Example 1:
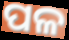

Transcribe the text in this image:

ପଳ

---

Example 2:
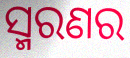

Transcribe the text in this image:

ସ୍ମରଣର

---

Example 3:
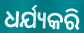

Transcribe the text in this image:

ଧର୍ଯ୍ୟକରି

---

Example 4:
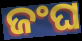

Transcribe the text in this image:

ଜଂଘ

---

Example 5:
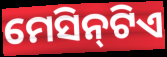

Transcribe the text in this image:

ମେସିନ୍‌ଟିଏ